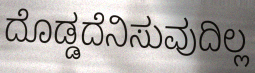
ದೊಡ್ಡದೆನಿಸುವುದಿಲ್ಲ